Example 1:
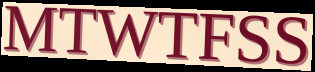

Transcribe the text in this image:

MTWTFSS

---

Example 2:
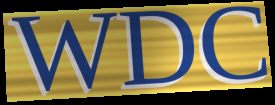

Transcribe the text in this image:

WDC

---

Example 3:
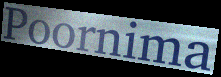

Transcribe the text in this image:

Poornima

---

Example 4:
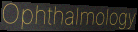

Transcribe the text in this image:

Ophthalmology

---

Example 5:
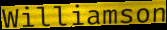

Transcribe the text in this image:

Williamson